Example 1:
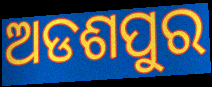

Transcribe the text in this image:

ଅଡଶପୁର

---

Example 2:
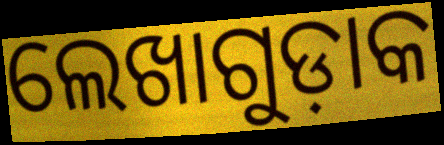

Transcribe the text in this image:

ଲେଖାଗୁଡ଼ାକ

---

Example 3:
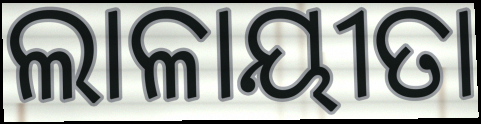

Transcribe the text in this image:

ଲାଳାୟୀତା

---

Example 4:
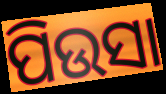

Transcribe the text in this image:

ପିଉସା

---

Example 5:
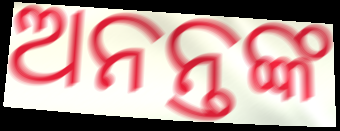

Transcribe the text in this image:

ଅନନ୍ତଙ୍କ